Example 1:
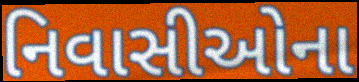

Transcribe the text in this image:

નિવાસીઓના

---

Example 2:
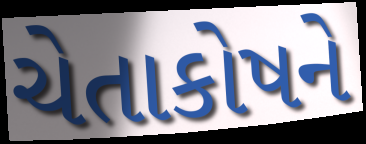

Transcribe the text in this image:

ચેતાકોષને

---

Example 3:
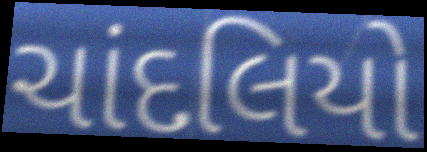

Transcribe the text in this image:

ચાંદલિયો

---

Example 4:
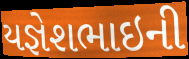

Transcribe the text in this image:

યજ્ઞેશભાઇની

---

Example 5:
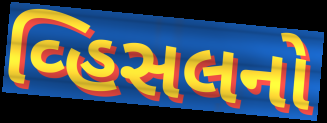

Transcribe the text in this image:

વ્હિસલનો